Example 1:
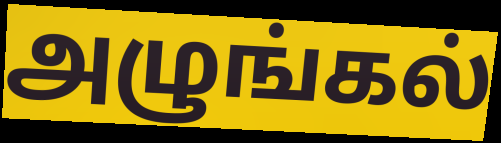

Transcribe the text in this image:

அழுங்கல்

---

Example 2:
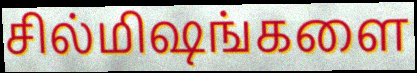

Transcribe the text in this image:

சில்மிஷங்களை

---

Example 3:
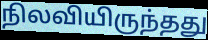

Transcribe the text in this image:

நிலவியிருந்தது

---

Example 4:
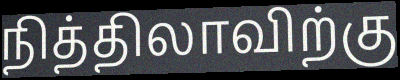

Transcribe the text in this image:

நித்திலாவிற்கு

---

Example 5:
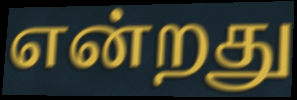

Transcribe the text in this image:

என்றது